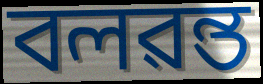
বলৱন্ত